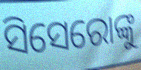
ସିସେରୋଙ୍କୁ